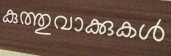
കുത്തുവാക്കുകൾ